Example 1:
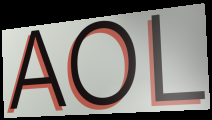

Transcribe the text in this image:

AOL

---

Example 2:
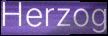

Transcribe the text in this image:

Herzog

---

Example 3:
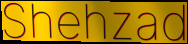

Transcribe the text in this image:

Shehzad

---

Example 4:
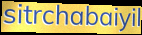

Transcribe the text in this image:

sitrchabaiyil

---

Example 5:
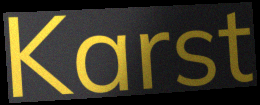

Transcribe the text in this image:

Karst